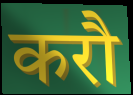
करौ